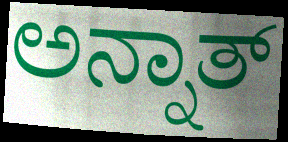
ಅನ್ನಾತ್